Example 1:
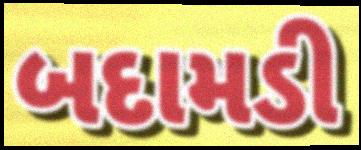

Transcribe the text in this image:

બદામડી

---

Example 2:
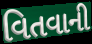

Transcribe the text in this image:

વિતવાની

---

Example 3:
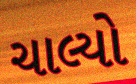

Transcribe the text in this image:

ચાલ્યો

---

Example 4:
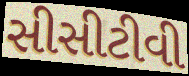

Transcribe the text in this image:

સીસીટીવી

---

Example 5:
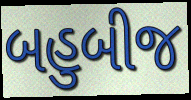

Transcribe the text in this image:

બહુબીજ